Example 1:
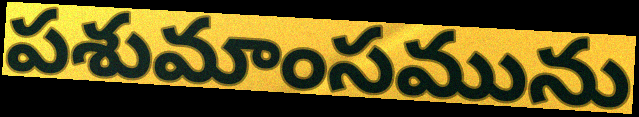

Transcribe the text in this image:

పశుమాంసమును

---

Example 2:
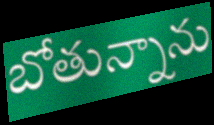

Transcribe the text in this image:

బోతున్నాను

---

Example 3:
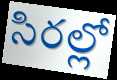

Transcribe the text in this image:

సిరల్లో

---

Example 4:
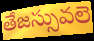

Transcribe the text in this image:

తేజస్సువలె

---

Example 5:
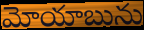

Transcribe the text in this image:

మోయాబును